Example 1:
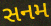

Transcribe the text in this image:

સનમ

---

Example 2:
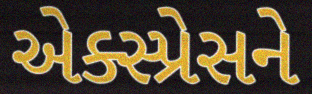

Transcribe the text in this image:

એક્સ્પ્રેસને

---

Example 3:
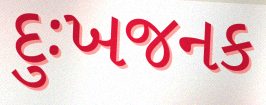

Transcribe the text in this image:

દુઃખજનક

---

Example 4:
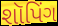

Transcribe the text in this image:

શૉપિંગ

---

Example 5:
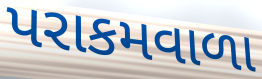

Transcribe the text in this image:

પરાકમવાળા